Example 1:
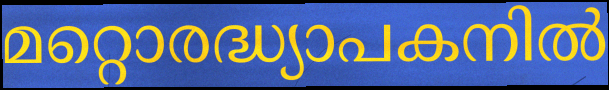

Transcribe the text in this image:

മറ്റൊരദ്ധ്യാപകനിൽ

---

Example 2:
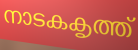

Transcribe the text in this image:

നാടകകൃത്ത്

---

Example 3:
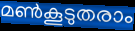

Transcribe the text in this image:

മൺകൂടുതരാം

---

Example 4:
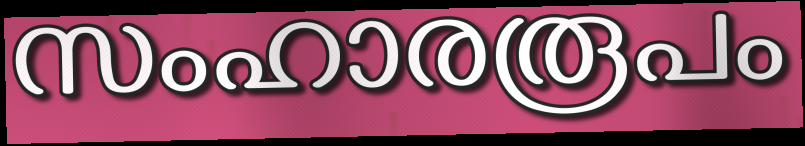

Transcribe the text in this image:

സംഹാരരൂപം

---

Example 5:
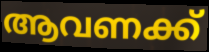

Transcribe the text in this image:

ആവണക്ക്